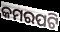
କମରପଟି